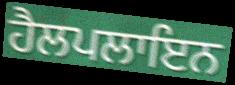
ਹੈਲਪਲਾਇਨ